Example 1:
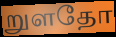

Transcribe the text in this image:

றுளதோ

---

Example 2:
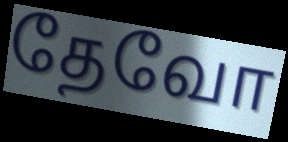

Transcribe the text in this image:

தேவோ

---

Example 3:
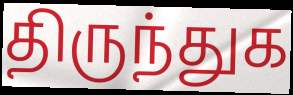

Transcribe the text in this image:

திருந்துக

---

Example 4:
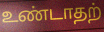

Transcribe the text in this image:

உண்டாதற்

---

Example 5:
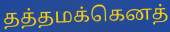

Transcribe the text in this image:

தத்தமக்கெனத்